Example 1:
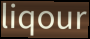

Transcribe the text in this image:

liqour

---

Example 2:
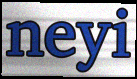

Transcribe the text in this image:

neyi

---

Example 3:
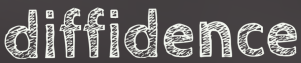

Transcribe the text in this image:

diffidence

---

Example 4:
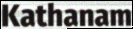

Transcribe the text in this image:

Kathanam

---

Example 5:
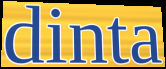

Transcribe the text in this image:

dinta